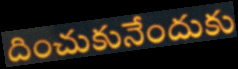
దించుకునేందుకు